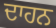
ਦਾਹਨ